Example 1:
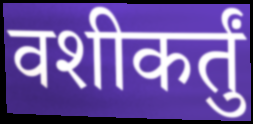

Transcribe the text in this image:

वशीकर्तुं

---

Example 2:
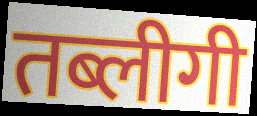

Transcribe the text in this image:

तब्‍लीगी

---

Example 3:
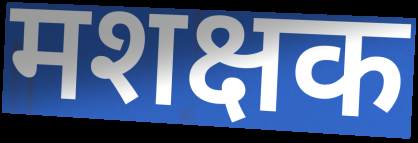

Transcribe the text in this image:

मशक्षक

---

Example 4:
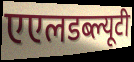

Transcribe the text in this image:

एएलडब्ल्यूटी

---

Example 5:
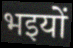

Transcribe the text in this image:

भइयों